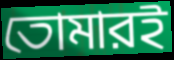
তোমারই